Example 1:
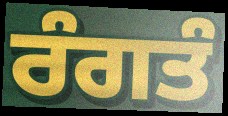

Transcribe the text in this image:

ਰੰਗਤੰ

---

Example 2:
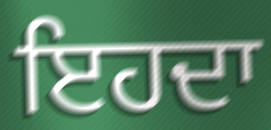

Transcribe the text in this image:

ਇਹਦਾ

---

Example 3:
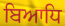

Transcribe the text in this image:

ਬਿਆਧਿ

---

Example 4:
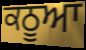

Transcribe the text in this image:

ਕਠੂਆ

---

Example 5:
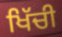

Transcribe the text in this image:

ਖਿੱਚੀ